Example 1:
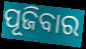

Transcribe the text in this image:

ପୂଜିବାର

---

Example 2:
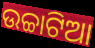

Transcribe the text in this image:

ଉଚ୍ଚାଟିଆ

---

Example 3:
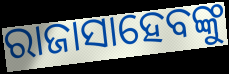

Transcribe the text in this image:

ରାଜାସାହେବଙ୍କୁ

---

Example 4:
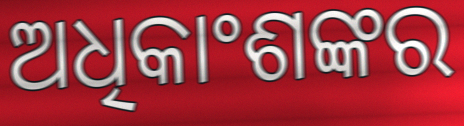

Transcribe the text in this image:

ଅଧିକାଂଶଙ୍କର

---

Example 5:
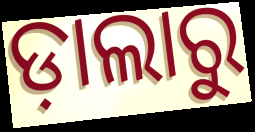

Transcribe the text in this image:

ଡ଼ାଲାରୁ